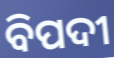
ବିପଦୀ